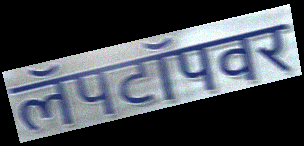
लॅपटॉपवर